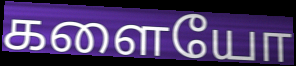
களையோ